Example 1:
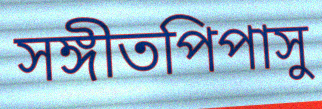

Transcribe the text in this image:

সঙ্গীতপিপাসু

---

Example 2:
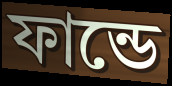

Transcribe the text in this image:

ফান্ডে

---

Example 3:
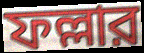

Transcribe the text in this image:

ফল্লার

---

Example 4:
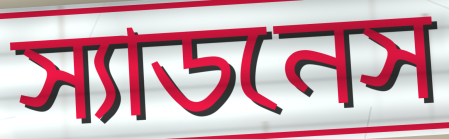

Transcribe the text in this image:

স্যাডনেস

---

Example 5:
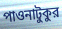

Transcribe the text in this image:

পাওনাটুকুর